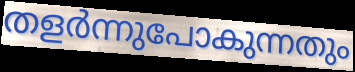
തളർന്നുപോകുന്നതും